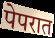
पेपरात